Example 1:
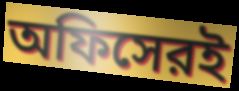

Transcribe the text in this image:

অফিসেরই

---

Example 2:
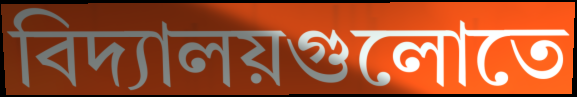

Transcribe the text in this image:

বিদ্যালয়গুলোতে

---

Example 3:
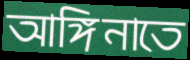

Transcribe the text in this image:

আঙ্গিনাতে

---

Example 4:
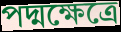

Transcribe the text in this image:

পদ্মক্ষেত্রে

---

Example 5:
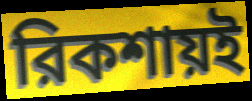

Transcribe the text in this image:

রিকশায়ই